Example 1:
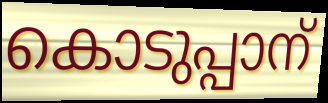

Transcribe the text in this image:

കൊടുപ്പാന്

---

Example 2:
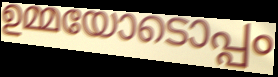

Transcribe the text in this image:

ഉമ്മയോടൊപ്പം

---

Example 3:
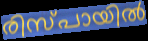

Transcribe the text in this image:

രിസ്പായിൽ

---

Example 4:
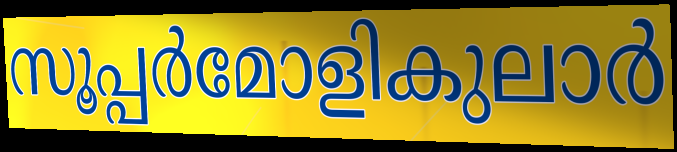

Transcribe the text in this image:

സൂപ്പർമോളികുലാർ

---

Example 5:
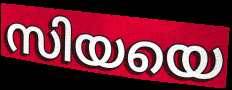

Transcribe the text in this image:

സിയയെ